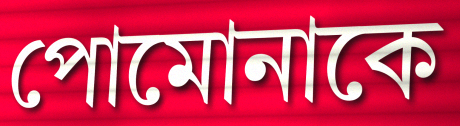
পোমোনাকে